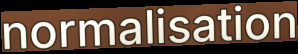
normalisation